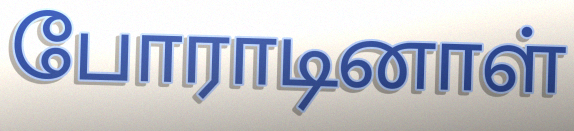
போராடினாள்